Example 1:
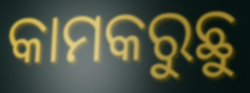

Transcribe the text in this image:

କାମକରୁଛୁ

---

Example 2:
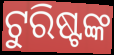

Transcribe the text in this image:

ଟୁରିଷ୍ଟଙ୍କ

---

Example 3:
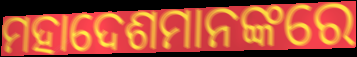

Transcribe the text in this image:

ମହାଦେଶମାନଙ୍କରେ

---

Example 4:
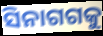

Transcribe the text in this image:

ସିନାଗଗକୁ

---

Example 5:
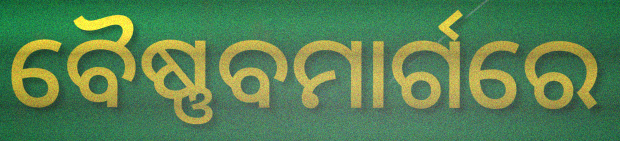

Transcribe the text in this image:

ବୈଷ୍ଣବମାର୍ଗରେ